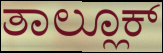
ತಾಲ್ಲೂಕ್